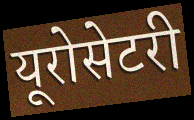
यूरोसेटरी